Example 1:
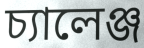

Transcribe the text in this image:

চ্যালেঞ্জ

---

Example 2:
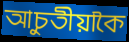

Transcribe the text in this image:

আচুতীয়াকৈ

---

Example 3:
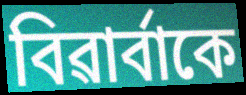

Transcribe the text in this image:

বিৱাৰ্বাকে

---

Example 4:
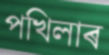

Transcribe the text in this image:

পখিলাৰ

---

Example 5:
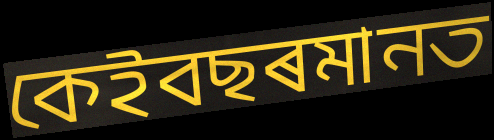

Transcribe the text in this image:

কেইবছৰমানত